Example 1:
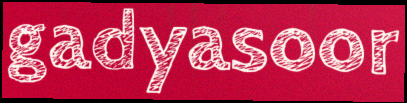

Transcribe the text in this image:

gadyasoor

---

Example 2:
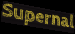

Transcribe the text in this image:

Supernal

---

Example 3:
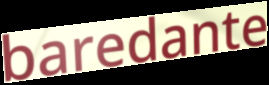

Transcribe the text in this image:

baredante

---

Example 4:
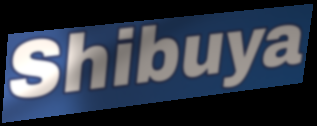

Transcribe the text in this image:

Shibuya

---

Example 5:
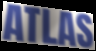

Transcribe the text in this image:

ATLAS